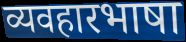
व्यवहारभाषा